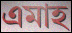
এমাহ